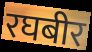
रघबीर